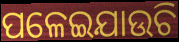
ପଳେଇଯାଉଚି